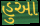
હુઆ